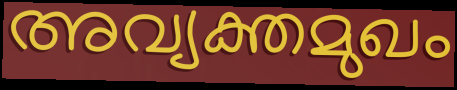
അവ്യക്തമുഖം